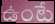
ఉంటే